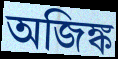
অজিঙ্ক